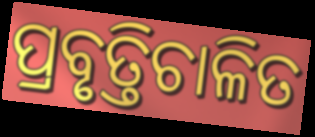
ପ୍ରବୃତ୍ତିଚାଳିତ